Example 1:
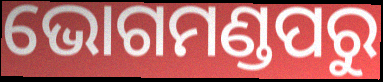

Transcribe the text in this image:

ଭୋଗମଣ୍ଡପରୁ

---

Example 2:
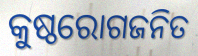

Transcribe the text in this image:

କୁଷ୍ଠରୋଗଜନିତ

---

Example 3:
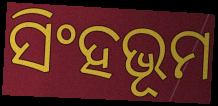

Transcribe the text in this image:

ସିଂହଭୂମ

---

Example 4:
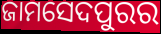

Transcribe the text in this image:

ଜାମସେଦପୁରର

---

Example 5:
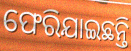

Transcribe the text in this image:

ଫେରିଯାଇଛନ୍ତି